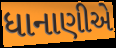
ધાનાણીએ